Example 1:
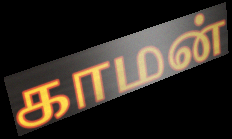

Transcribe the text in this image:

காமன்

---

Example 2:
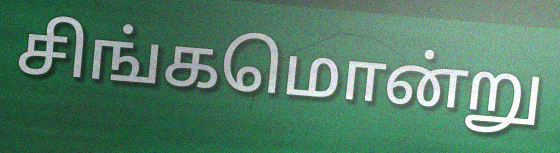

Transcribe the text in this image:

சிங்கமொன்று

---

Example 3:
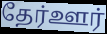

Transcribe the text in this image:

தேர்ஊர்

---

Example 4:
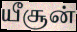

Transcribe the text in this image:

யீசூன்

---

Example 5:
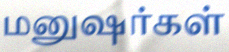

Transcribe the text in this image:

மனுஷர்கள்